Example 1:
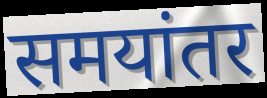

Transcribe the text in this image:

समयांतर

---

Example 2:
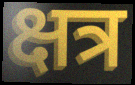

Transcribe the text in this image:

क्षत्र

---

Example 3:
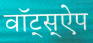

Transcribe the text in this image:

वॉट्स्ऐप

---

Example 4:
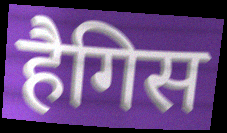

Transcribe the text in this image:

हैगिस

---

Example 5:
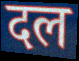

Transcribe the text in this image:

दल